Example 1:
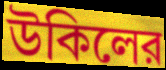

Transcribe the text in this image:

উকিলের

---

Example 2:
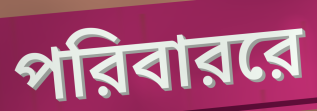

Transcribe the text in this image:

পরিবাররে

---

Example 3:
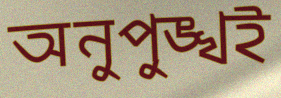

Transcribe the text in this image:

অনুপুঙ্খই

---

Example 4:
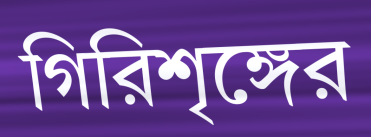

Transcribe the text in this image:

গিরিশৃঙ্গের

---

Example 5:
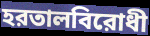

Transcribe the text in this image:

হরতালবিরোধী